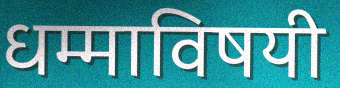
धम्माविषयी